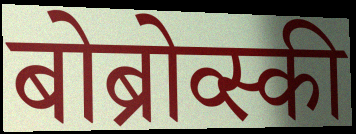
बोब्रोव्स्की